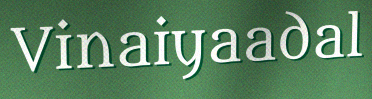
Vinaiyaadal